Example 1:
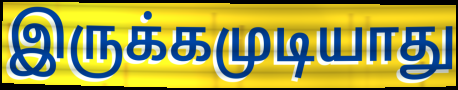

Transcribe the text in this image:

இருக்கமுடியாது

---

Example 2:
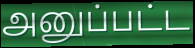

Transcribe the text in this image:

அனுப்பட்ட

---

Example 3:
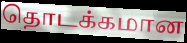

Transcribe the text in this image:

தொடக்கமான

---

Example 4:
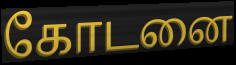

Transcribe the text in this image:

கோடனை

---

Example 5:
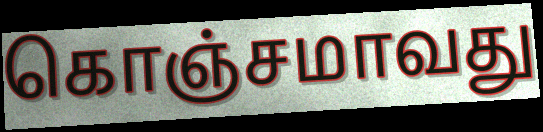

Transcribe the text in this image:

கொஞ்சமாவது